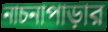
নাচনাপাড়ার